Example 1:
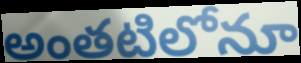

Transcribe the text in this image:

అంతటిలోనూ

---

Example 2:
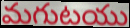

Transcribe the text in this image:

మగుటయు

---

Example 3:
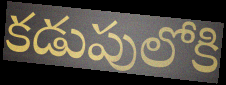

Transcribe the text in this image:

కడుపులోకి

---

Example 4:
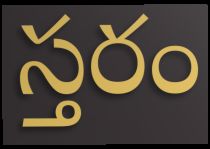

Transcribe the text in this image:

స్తరం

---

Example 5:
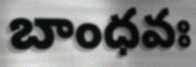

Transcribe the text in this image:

బాంధవః